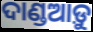
ଦାଣ୍ଡଆଡ଼ୁ